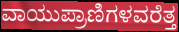
ವಾಯುಪ್ರಾಣಿಗಳವರೆತ್ತ